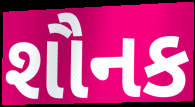
શૌનક